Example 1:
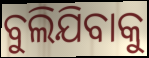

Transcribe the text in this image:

ବୁଲିଯିବାକୁ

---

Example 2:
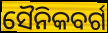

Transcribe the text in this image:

ସୈନିକବର୍ଗ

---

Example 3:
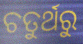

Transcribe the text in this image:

ଚତୁର୍ଥରୁ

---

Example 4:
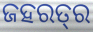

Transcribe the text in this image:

ଜହରତ୍‍ର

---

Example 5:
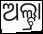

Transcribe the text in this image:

ଅଲ୍ଟ୍ରା